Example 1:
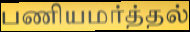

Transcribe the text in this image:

பணியமர்த்தல்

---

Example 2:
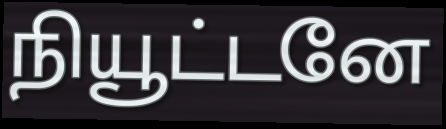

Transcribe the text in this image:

நியூட்டனே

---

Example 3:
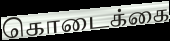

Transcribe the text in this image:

கொடைக்கை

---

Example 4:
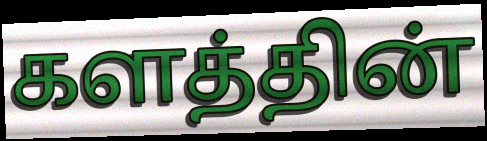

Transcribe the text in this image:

களத்தின்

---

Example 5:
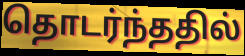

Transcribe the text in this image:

தொடர்ந்ததில்